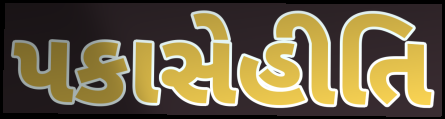
પકાસેહીતિ